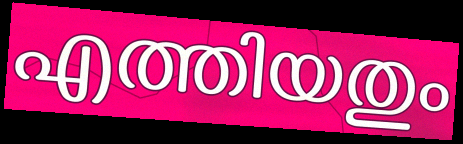
എത്തിയതും